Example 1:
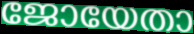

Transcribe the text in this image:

ജോയേതാ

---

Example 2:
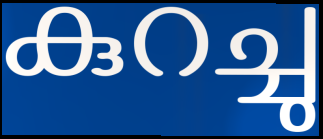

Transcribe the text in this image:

കുറച്ചു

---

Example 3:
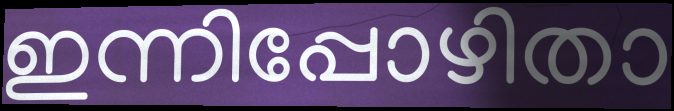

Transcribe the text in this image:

ഇന്നിപ്പോഴിതാ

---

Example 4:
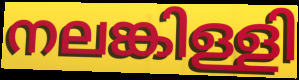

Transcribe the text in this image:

നലങ്കിള്ളി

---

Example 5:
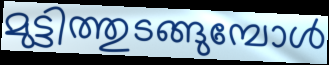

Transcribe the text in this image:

മുട്ടിത്തുടങ്ങുമ്പോൾ